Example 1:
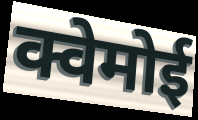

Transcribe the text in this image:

क्वेमोई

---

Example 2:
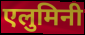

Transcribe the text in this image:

एलुमिनी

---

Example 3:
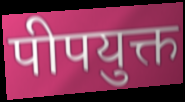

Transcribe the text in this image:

पीपयुक्त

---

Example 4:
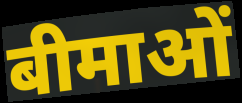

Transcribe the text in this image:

बीमाओं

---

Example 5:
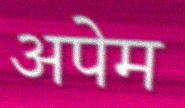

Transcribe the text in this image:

अपेम